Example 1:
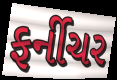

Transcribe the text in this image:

ફર્નીચર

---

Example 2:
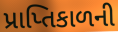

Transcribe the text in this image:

પ્રાપ્તિકાળની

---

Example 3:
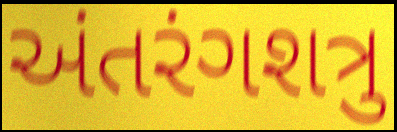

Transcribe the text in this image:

અંતરંગશત્રુ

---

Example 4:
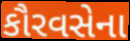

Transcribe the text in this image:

કૌરવસેના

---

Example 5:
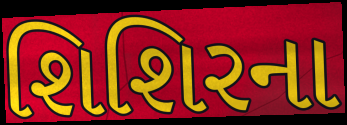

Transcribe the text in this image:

શિશિરના